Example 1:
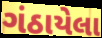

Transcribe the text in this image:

ગંઠાયેલા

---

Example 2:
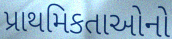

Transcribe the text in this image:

પ્રાથમિકતાઓનો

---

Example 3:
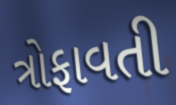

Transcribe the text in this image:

ત્રોફાવતી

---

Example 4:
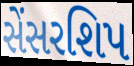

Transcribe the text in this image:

સેંસરશિપ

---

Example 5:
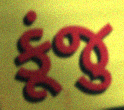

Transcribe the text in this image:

કૂંજુ